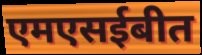
एमएसईबीत